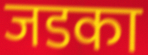
जडका